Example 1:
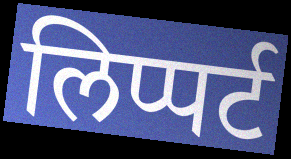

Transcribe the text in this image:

लिप्पर्ट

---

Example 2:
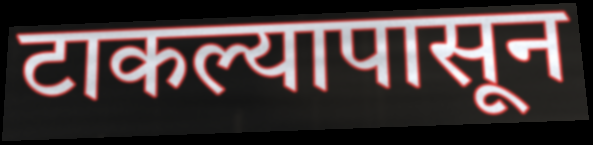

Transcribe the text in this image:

टाकल्यापासून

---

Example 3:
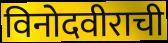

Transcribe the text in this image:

विनोदवीराची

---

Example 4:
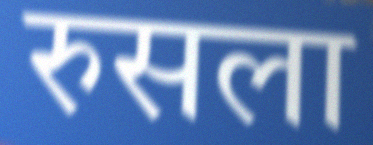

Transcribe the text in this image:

रुसला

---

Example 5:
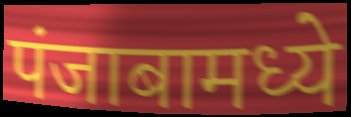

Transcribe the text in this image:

पंजाबामध्ये